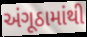
અંગૂઠામાંથી